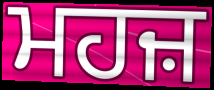
ਮਹਜ਼